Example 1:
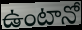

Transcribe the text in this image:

ఉంటానో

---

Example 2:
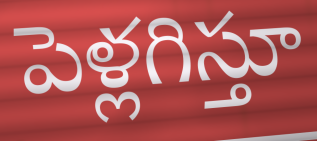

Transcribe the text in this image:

పెళ్లగిస్తూ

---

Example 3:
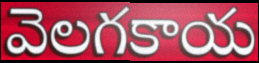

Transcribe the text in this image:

వెలగకాయ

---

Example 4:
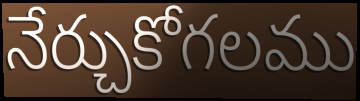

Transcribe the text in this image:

నేర్చుకోగలము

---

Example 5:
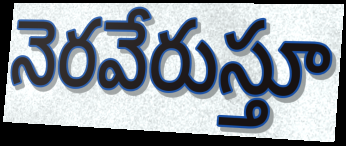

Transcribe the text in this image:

నెరవేరుస్తూ